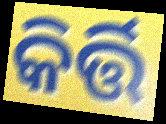
କିର୍ତ୍ତି